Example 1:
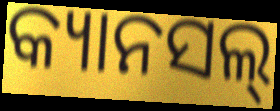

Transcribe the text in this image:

କ୍ୟାନସଲ୍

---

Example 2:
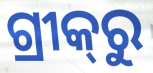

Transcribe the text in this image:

ଗ୍ରୀକ୍‌ରୁ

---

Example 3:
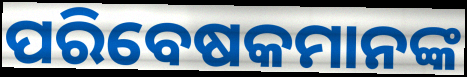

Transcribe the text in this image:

ପରିବେଷକମାନଙ୍କ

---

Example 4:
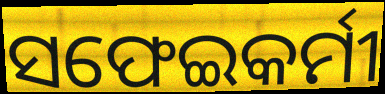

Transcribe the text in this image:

ସଫେଇକର୍ମୀ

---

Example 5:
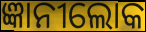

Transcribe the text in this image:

ଜ୍ଞାନୀଲୋକ